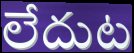
లేదుట